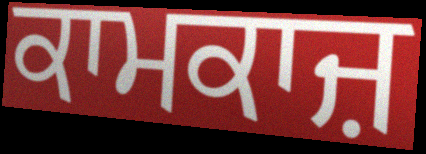
ਕਾਮਕਾਜ਼